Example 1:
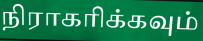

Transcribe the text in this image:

நிராகரிக்கவும்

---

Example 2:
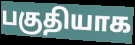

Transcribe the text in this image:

பகுதியாக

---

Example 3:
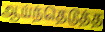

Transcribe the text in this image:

ஆய்ந்தெடுத்த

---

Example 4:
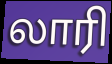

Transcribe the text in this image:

லாரி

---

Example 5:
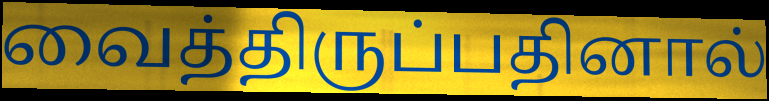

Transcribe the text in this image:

வைத்திருப்பதினால்